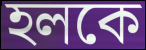
হলকে